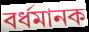
বর্ধমানক